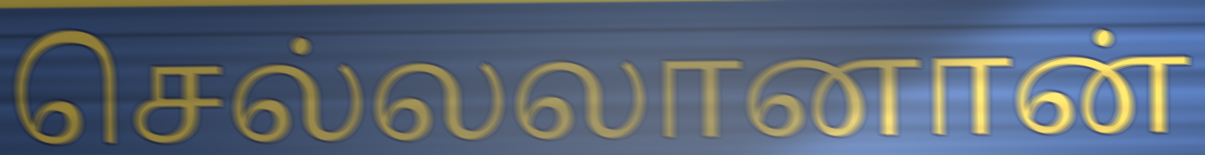
செல்லலானான்